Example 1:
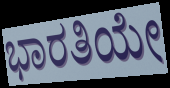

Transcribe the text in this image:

ಭಾರತಿಯೇ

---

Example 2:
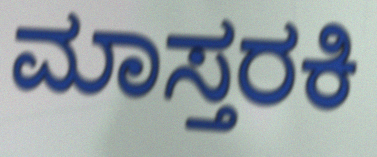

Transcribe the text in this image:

ಮಾಸ್ತರಕಿ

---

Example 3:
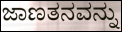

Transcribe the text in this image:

ಜಾಣತನವನ್ನು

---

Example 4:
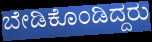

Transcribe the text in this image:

ಬೇಡಿಕೊಂಡಿದ್ದರು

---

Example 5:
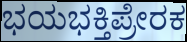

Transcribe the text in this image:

ಭಯಭಕ್ತಿಪ್ರೇರಕ